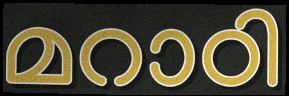
മറാഠി